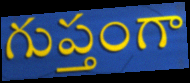
గుప్తంగా